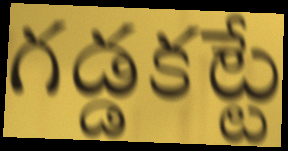
గడ్డకట్టే